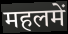
महलमें